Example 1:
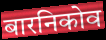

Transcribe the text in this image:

बारनिकोव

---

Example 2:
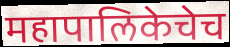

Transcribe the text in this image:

महापालिकेचेच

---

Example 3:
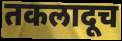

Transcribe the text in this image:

तकलादूच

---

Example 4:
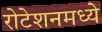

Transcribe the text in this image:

रोटेशनमध्ये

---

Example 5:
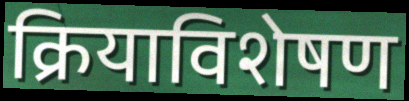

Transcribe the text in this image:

क्रियाविशेषण